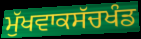
ਮੁੱਖਵਾਕਸੱਚਖੰਡ